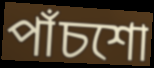
পাঁচশো